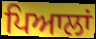
ਪਿਆਲਾਂ